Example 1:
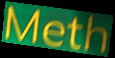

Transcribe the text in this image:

Meth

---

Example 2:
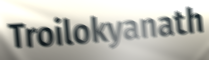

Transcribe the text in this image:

Troilokyanath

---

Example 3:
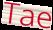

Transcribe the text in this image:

Tae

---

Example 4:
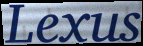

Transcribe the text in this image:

Lexus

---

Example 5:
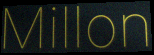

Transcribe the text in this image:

Millon